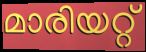
മാരിയറ്റ്